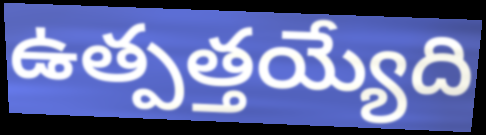
ఉత్పత్తయ్యేది